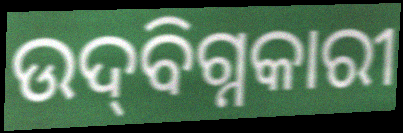
ଉଦ୍‌ବିଗ୍ନକାରୀ